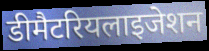
डीमैटरियलाइजेशन